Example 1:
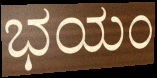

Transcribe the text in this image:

ಭಯಂ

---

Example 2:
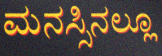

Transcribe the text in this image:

ಮನಸ್ಸಿನಲ್ಲೂ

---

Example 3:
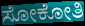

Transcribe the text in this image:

ಸೋಕೋತಿ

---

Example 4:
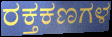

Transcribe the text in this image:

ರಕ್ತಕಣಗಳ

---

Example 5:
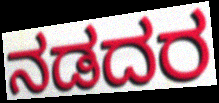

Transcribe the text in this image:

ನಡದರ